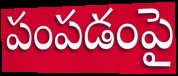
పంపడంపై